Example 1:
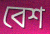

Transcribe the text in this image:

বেশ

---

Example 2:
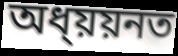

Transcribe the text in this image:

অধ্য়য়নত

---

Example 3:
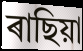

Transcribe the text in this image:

ৰাছিয়া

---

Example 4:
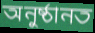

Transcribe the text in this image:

অনুষ্ঠানত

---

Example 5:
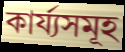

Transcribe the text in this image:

কাৰ্য্যসমূহ